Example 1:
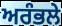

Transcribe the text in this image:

ਅਰੰਭਲੇ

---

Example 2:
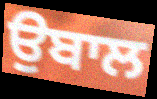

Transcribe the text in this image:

ਉਬਾਲ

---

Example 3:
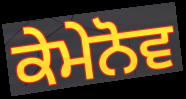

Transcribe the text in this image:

ਕੇਮੇਨੋਵ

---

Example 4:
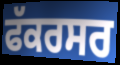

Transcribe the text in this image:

ਫੱਕਰਸਰ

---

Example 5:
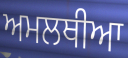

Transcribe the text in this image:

ਅਮਲਥੀਆ